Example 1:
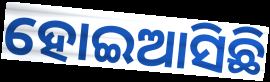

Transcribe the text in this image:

ହୋଇଆସିଛି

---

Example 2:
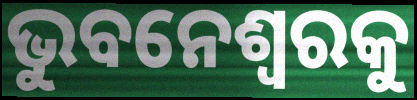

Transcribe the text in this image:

ଭୁବନେଶ୍ୱରକୁ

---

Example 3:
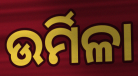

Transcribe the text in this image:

ଉର୍ମିଳା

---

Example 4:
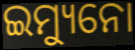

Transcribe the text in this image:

ଇମ୍ୟୁନୋ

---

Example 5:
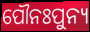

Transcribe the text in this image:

ପୌନଃପୁନ୍ୟ